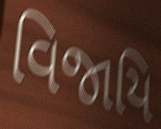
વિજાયિ